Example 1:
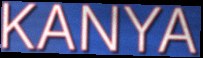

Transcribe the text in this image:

KANYA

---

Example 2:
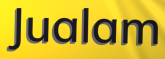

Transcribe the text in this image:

Jualam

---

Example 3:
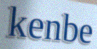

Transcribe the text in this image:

kenbe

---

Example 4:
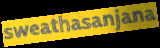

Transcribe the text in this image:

sweathasanjana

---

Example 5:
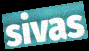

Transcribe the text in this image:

sivas